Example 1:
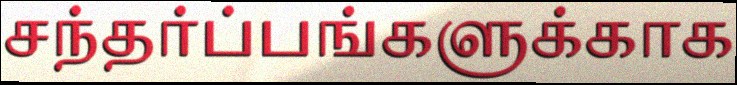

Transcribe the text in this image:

சந்தர்ப்பங்களுக்காக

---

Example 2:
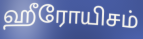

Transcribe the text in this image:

ஹீரோயிசம்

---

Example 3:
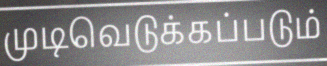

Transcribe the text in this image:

முடிவெடுக்கப்படும்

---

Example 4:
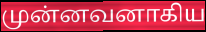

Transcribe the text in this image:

முன்னவனாகிய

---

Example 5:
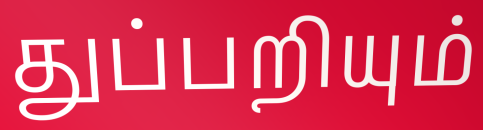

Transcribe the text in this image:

துப்பறியும்